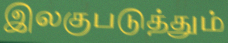
இலகுபடுத்தும்